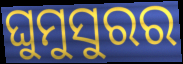
ଘୁମୁସୁରର